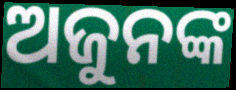
ଅଜୁନଙ୍କ